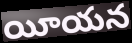
యీయన